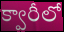
క్వారీలో